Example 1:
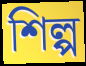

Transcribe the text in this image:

শিল্প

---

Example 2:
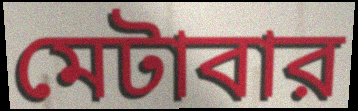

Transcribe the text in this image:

মেটাবার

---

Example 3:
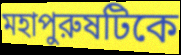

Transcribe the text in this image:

মহাপুরুষটিকে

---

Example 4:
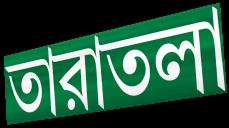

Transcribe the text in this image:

তারাতলা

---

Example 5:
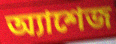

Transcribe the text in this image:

অ্যাশেজ